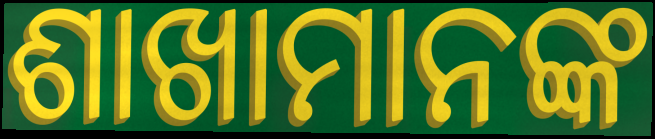
ଶାଖାମାନଙ୍କ